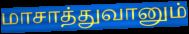
மாசாத்துவானும்